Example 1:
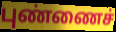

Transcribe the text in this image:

புண்ணைச்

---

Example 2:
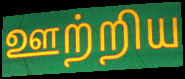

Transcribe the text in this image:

ஊற்றிய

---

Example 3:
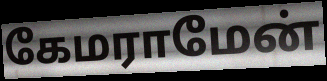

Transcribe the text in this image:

கேமராமேன்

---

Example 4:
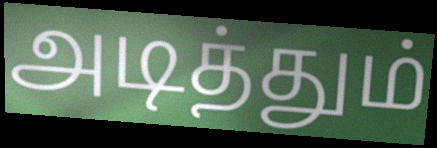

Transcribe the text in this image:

அடித்தும்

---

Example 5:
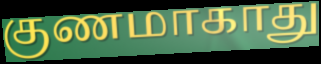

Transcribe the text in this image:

குணமாகாது